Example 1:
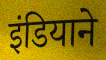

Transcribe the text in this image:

इंडियाने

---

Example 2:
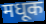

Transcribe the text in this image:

मधूक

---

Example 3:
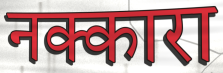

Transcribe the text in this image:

नक्कारा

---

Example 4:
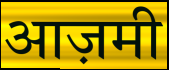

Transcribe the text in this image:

आज़मी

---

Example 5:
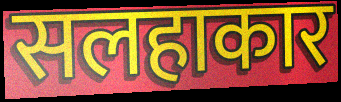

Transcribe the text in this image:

सलहाकार